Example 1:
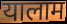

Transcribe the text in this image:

यालाम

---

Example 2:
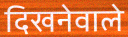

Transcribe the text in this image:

दिखनेवाले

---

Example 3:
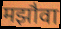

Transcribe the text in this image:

मझौवा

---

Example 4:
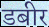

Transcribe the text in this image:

डबीर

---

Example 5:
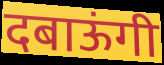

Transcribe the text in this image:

दबाऊंगी